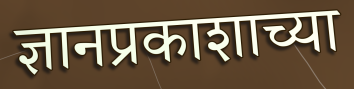
ज्ञानप्रकाशाच्या